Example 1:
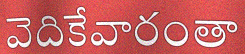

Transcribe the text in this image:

వెదికేవారంతా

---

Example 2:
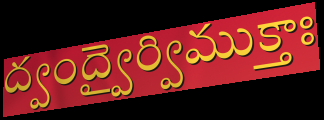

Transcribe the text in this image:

ద్వంద్వైర్విముక్తాః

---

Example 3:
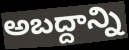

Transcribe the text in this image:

అబద్దాన్ని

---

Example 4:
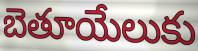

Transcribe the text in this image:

బెతూయేలుకు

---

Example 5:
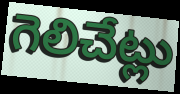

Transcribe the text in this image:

గెలిచేట్లు